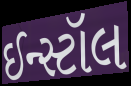
ઈન્સ્ટૉલ